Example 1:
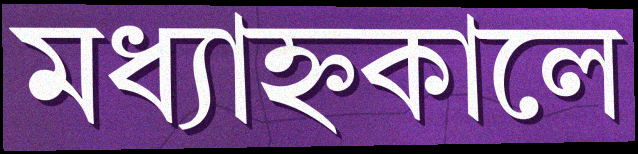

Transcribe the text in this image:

মধ্যাহ্নকালে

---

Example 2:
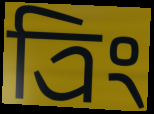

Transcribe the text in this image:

ত্রিং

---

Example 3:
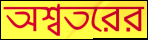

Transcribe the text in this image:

অশ্বতরের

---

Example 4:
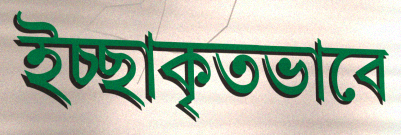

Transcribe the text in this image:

ইচ্ছাকৃতভাবে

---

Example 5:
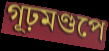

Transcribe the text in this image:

গূঢ়মণ্ডপে